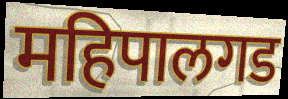
महिपालगड